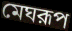
মেঘরূপ